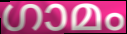
ഗാമം